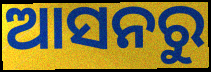
ଆସନରୁ